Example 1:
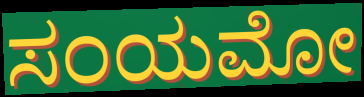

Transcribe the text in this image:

ಸಂಯಮೋ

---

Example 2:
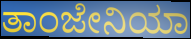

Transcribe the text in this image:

ತಾಂಜೇನಿಯಾ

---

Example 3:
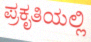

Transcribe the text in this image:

ಪ್ರಕೃತಿಯಲ್ಲಿ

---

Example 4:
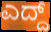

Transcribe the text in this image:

ಎದ್ದ್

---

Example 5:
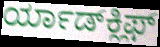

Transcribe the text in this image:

ರ್ಯಾಡ್‍ಕ್ಲಿಫ್